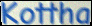
Kottha